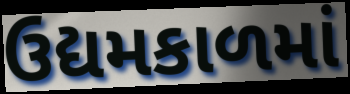
ઉદ્યમકાળમાં